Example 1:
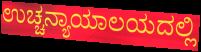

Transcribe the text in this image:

ಉಚ್ಚನ್ಯಾಯಾಲಯದಲ್ಲಿ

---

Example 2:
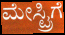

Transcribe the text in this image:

ಮೇಸ್ಟ್ರಿಗೆ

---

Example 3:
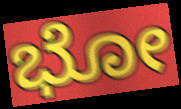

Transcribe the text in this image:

ಭೋ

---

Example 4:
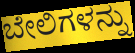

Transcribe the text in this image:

ಬೇಲಿಗಳನ್ನು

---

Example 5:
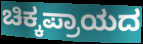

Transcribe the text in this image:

ಚಿಕ್ಕಪ್ರಾಯದ